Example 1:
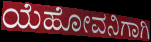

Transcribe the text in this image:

ಯೆಹೋವನಿಗಾಗಿ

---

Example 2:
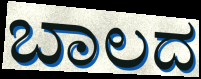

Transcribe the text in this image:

ಬಾಲದ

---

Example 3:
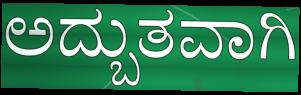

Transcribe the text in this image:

ಅದ್ಬುತವಾಗಿ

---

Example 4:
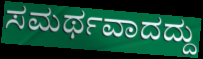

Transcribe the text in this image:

ಸಮರ್ಥವಾದದ್ದು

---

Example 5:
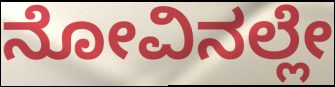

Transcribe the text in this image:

ನೋವಿನಲ್ಲೇ